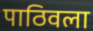
पाठिवला